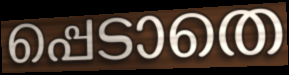
പ്പെടാതെ